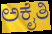
ಅಕೈತಿ